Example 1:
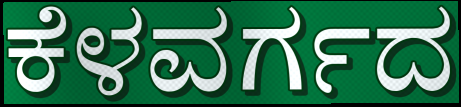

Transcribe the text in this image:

ಕೆಳವರ್ಗದ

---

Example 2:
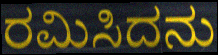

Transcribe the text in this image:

ರಮಿಸಿದನು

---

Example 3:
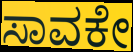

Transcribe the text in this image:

ಸಾವಕೇ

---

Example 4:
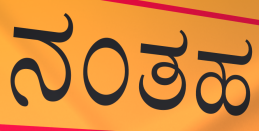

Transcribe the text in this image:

ನಂತಹ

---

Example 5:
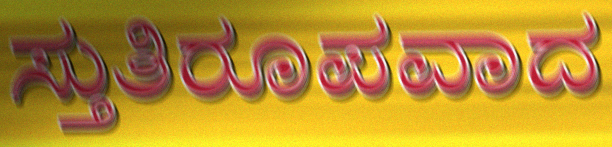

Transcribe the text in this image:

ಸ್ತುತಿರೂಪವಾದ